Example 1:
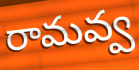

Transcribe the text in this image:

రామవ్వ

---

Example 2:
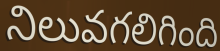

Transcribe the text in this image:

నిలువగలిగింది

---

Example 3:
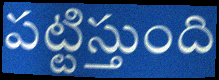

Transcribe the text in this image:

పట్టిస్తుంది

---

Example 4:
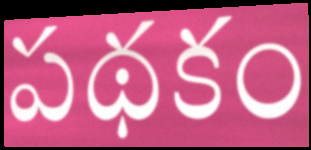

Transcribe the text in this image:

పథకం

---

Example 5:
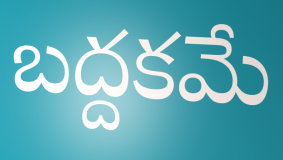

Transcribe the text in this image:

బద్దకమే